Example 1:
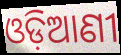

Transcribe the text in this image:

ଓଡ଼ିଆଣୀ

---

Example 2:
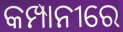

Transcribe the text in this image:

କମ୍ପାନୀରେ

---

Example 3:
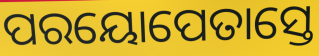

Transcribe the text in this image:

ପରୟୋପେତାସ୍ତେ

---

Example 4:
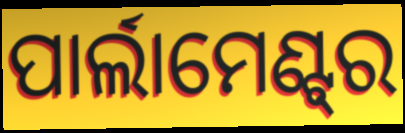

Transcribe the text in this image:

ପାର୍ଲାମେଣ୍ଟ୍‌ର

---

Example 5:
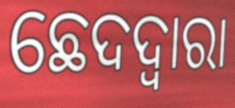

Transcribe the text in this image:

ଛେଦଦ୍ୱାରା